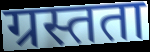
ग्रस्तता